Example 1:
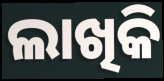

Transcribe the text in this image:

ଲାଖିକି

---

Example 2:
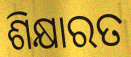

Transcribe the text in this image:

ଶିକ୍ଷାରତ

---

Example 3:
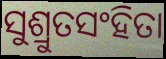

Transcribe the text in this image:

ସୁଶ୍ରୁତସଂହିତା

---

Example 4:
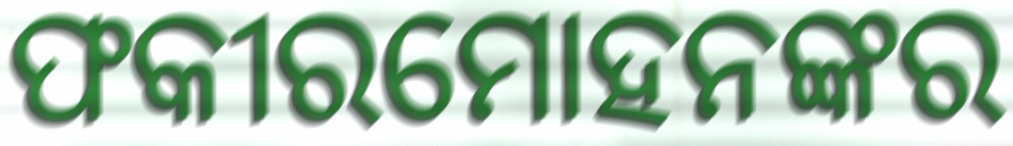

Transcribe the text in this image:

ଫକୀରମୋହନଙ୍କର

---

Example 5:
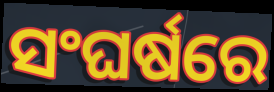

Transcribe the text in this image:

ସଂଘର୍ଷରେ